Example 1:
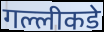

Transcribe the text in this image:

गल्लीकडे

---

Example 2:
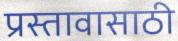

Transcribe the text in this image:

प्रस्तावासाठी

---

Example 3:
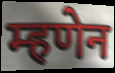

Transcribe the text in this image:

म्हणेन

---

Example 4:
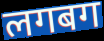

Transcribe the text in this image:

लगबग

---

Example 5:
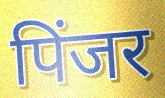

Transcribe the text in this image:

पिंजर